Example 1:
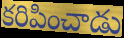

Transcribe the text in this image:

కరిపించాడు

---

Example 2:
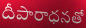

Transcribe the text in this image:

దీపారాధనతో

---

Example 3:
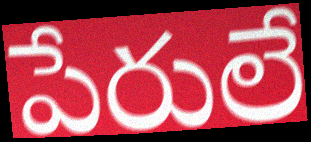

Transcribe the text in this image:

పేరులే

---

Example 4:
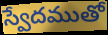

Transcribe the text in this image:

స్వేదముతో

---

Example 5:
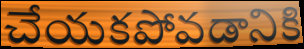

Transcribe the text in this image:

చేయకపోవడానికి